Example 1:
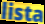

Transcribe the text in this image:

lista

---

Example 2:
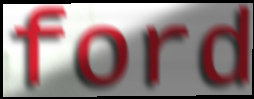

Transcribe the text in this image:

ford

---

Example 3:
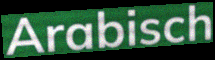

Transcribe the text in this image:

Arabisch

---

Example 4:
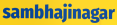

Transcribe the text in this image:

sambhajinagar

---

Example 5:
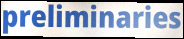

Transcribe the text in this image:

preliminaries